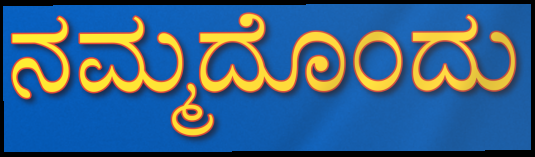
ನಮ್ಮದೊಂದು